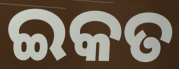
ଇକତ